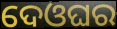
ଦେଓଘର